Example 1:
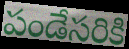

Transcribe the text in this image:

పండేసరికి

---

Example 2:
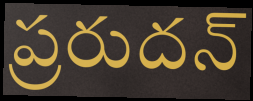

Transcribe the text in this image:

ప్రరుదన్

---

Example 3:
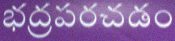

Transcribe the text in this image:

భద్రపరచడం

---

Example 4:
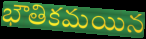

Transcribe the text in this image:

భౌతికమయిన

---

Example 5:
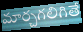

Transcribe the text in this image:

మార్చగలిగితే